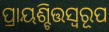
ପ୍ରାୟଶ୍ଚିତ୍ତସ୍ୱରୂପ